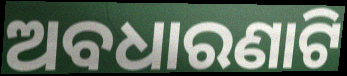
ଅବଧାରଣାଟି